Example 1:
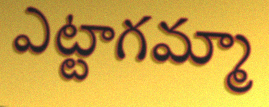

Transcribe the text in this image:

ఎట్టాగమ్మా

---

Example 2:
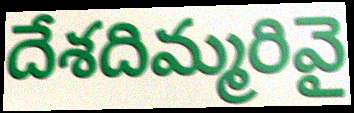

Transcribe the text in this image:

దేశదిమ్మరివై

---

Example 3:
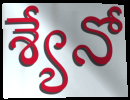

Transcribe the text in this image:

శ్యేనో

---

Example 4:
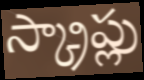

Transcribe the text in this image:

స్క్రాప్లు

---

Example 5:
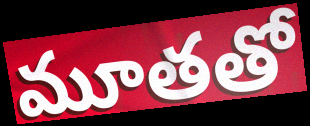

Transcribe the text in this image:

మూతతో